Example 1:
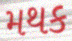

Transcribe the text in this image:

મથક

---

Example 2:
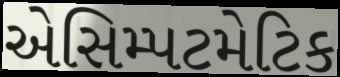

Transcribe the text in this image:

એસિમ્પટમેટિક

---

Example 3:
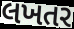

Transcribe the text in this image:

લખતર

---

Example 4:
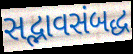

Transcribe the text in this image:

સદ્ભાવસંબદ્ધ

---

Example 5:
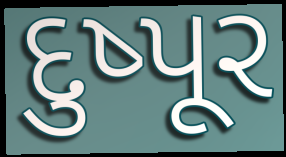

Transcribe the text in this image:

દુષ્પૂર